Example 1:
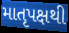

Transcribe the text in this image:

માતૃપક્ષથી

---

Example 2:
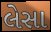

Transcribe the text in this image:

લેસા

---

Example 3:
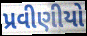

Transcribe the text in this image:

પ્રવીણીયો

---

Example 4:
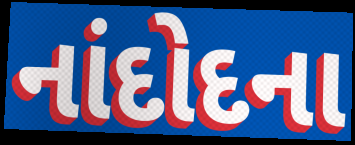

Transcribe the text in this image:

નાંદોદના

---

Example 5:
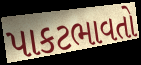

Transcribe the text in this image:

પાકટભાવતો